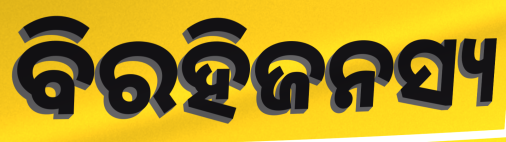
ବିରହିଜନସ୍ୟ